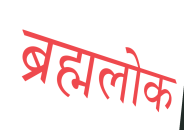
ब्रह्मलोक